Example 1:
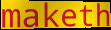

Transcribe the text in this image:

maketh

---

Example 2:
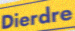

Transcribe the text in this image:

Dierdre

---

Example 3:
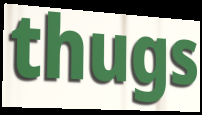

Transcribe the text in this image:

thugs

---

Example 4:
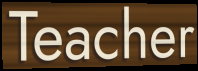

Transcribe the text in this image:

Teacher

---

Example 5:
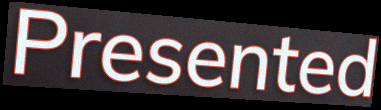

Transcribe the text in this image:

Presented